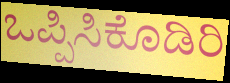
ಒಪ್ಪಿಸಿಕೊಡಿರಿ